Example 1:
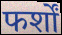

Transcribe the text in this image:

फर्शों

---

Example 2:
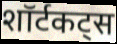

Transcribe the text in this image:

शॉर्टकट्स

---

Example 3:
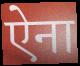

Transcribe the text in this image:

ऐना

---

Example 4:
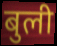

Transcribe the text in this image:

बुली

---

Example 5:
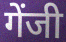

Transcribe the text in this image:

गेंजी